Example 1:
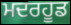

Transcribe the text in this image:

ਮਦਰਹੂਡ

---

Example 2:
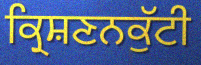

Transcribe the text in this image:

ਕ੍ਰਿਸ਼ਣਨਕੁੱਟੀ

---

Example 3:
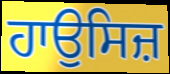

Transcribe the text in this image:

ਹਾਉਸਿਜ਼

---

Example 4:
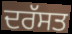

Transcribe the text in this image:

ਦਰੱਸਤ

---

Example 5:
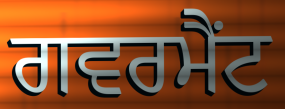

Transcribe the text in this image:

ਗਵਰਮੈਂਟ